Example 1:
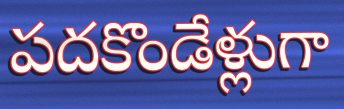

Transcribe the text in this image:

పదకొండేళ్లుగా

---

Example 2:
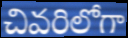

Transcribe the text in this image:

చివరిలోగా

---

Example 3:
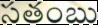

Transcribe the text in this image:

సతంబు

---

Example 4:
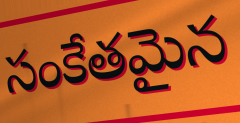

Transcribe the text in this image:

సంకేతమైన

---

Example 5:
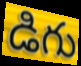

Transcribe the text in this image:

డిగు